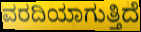
ವರದಿಯಾಗುತ್ತಿದೆ